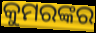
କୁମରଙ୍କର